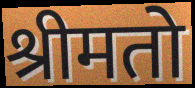
श्रीमतो